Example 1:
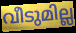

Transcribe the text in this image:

വീടുമില്ല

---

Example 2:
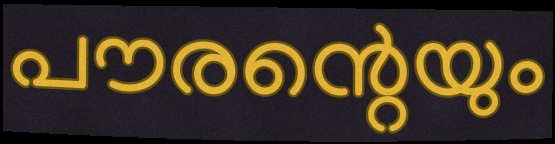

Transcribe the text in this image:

പൗരന്റെയും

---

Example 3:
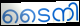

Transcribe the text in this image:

ടൈനി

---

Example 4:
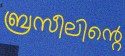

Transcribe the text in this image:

ബ്രസീലിന്റെ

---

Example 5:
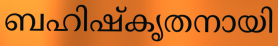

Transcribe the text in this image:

ബഹിഷ്കൃതനായി